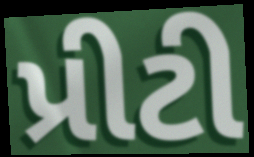
પ્રીટી